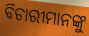
ବିଚାରୀମାନଙ୍କୁ